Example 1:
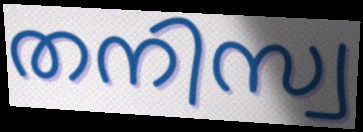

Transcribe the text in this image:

തനിസ്വ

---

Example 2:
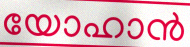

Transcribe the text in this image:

യോഹാൻ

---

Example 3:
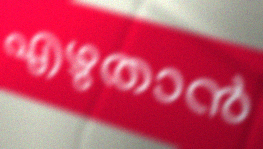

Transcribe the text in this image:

എഴുതാൻ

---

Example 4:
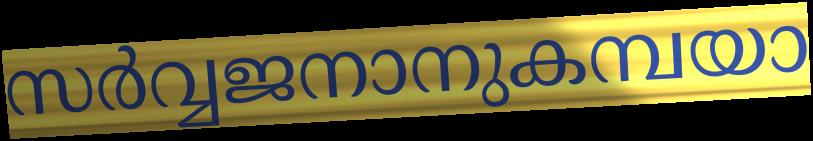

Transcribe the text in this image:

സർവ്വജനാനുകമ്പയാ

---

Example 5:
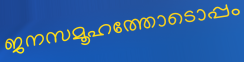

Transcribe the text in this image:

ജനസമൂഹത്തോടൊപ്പം